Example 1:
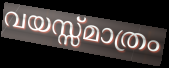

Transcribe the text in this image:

വയസ്സ്മാത്രം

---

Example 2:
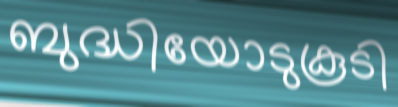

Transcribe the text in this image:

ബുദ്ധിയോടുകൂടി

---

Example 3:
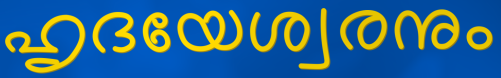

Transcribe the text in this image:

ഹൃദയേശ്വരനും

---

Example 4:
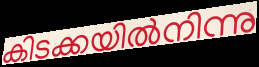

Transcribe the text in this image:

കിടക്കയിൽനിന്നു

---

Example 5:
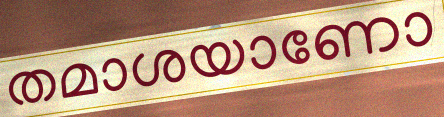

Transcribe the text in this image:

തമാശയാണോ